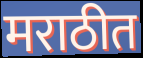
मराठीत